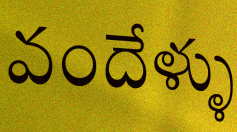
వందేళ్ళు